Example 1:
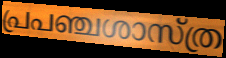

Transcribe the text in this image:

പ്രപഞ്ചശാസ്ത്ര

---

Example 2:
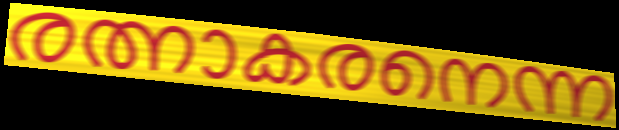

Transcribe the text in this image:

രത്നാകരനെന്ന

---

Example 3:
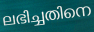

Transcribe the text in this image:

ലഭിച്ചതിനെ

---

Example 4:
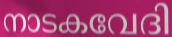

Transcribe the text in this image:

നാടകവേദി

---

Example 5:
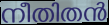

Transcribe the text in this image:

നീതിതൻ